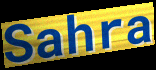
Sahra